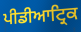
ਪੀਡੀਆਟ੍ਰਿਕ